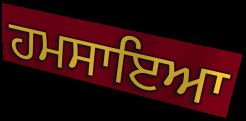
ਹਮਸਾਇਆ